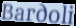
Bardoli